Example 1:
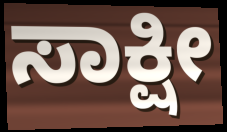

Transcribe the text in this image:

ಸಾಕ್ಷೀ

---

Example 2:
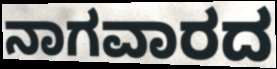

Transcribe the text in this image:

ನಾಗವಾರದ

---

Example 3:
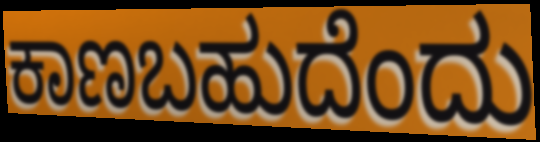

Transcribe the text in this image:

ಕಾಣಬಹುದೆಂದು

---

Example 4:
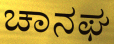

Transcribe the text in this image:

ಚಾನಘ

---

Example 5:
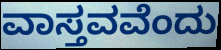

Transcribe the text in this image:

ವಾಸ್ತವವೆಂದು